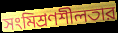
সংমিশ্রণশীলতার